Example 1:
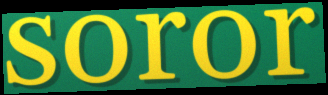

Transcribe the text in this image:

soror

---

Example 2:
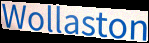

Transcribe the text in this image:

Wollaston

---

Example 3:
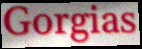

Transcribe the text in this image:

Gorgias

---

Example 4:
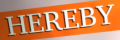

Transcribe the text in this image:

HEREBY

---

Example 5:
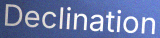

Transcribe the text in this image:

Declination